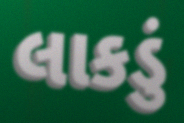
લાકડું